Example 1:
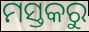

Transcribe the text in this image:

ମସ୍ତକରୁ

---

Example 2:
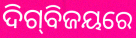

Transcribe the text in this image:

ଦିଗ୍‌ବିଜୟରେ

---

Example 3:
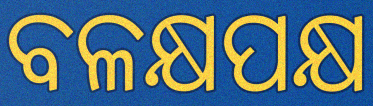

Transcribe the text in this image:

ବଳକ୍ଷପକ୍ଷ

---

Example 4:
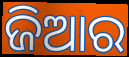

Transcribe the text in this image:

ଜିଆର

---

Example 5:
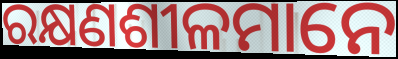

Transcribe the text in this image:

ରକ୍ଷଣଶୀଳମାନେ